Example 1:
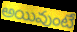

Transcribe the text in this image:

అయివుంటే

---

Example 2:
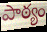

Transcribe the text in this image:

పాఠ్యం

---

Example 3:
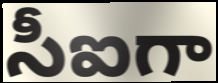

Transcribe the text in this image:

సీఐగా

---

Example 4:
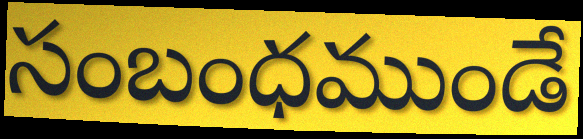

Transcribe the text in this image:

సంబంధముండే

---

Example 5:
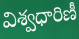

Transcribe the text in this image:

విశ్వధారిణీ